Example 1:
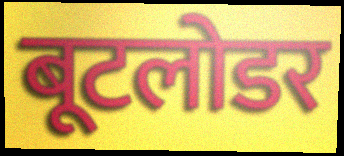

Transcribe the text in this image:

बूटलोडर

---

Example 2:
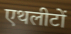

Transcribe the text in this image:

एथलीटों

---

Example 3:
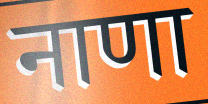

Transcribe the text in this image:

नाणा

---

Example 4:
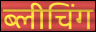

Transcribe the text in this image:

ब्लीचिंग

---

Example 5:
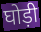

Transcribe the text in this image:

घोड़ी